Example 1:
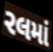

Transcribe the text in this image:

રલમાં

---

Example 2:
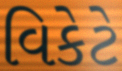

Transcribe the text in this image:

વિકેટે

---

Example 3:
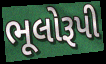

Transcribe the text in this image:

ભૂલોરૂપી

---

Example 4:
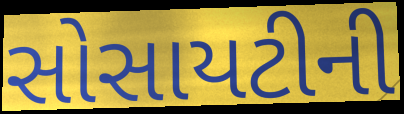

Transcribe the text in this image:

સોસાયટીની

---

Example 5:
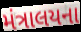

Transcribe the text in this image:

મંત્રાલયના